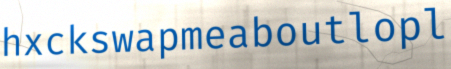
hxckswapmeaboutlopl